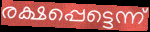
രക്ഷപ്പെട്ടെന്ന്